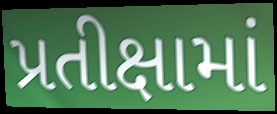
પ્રતીક્ષામાં